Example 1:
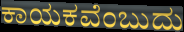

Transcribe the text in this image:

ಕಾಯಕವೆಂಬುದು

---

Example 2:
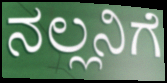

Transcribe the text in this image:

ನಲ್ಲನಿಗೆ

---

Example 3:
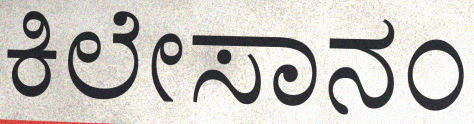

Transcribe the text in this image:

ಕಿಲೇಸಾನಂ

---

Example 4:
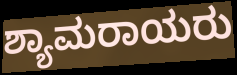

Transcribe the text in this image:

ಶ್ಯಾಮರಾಯರು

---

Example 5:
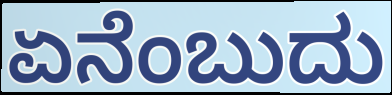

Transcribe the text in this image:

ಏನೆಂಬುದು